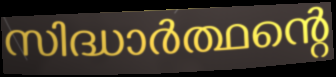
സിദ്ധാർത്ഥന്റെ